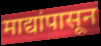
माद्यांपासून